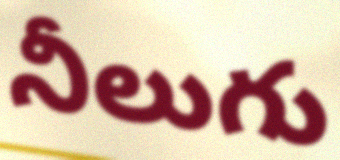
నీలుగు